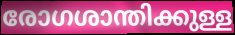
രോഗശാന്തിക്കുള്ള